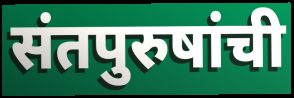
संतपुरुषांची